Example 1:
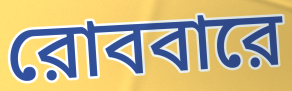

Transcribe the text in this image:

রোববারে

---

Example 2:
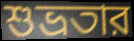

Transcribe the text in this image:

শুভ্রতার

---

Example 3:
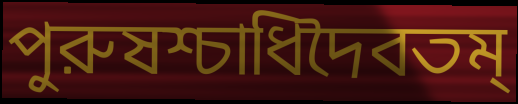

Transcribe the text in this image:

পুরুষশ্চাধিদৈবতম্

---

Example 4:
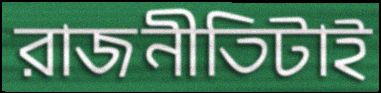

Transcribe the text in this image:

রাজনীতিটাই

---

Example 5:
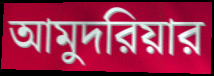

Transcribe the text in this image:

আমুদরিয়ার